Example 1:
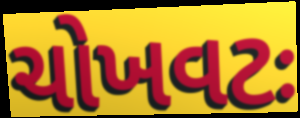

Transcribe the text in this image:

ચોખવટઃ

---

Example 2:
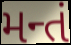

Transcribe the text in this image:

મન્તં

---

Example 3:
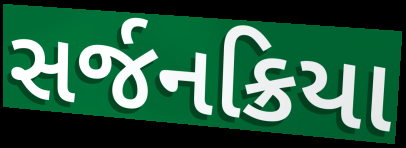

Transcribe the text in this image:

સર્જનક્રિયા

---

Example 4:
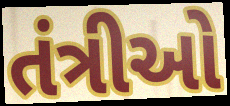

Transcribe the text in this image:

તંત્રીઓ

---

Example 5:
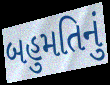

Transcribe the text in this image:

બહુમતિનું